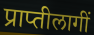
प्राप्तीलागीं